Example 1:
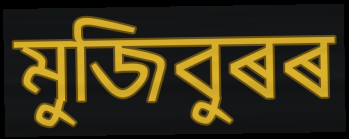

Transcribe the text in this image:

মুজিবুৰৰ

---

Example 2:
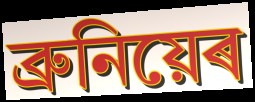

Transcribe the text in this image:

ব্ৰুনিয়েৰ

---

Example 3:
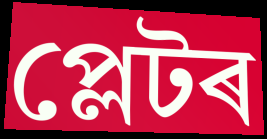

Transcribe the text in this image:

প্লেটৰ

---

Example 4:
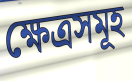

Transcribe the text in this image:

ক্ষেত্ৰসমূহ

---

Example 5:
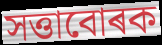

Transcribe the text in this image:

সত্তাবোৰক